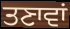
ਤਣਾਵਾਂ